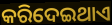
କରିଦେଇଥାଏ